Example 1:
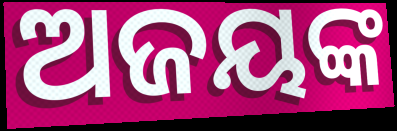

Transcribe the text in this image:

ଅଜୟଙ୍କ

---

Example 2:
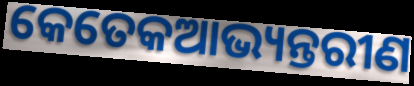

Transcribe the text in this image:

କେତେକଆଭ୍ୟନ୍ତରୀଣ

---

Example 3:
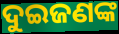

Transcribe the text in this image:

ଦୁଇଜଣଙ୍କ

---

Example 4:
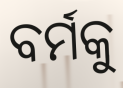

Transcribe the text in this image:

ବର୍ମକୁ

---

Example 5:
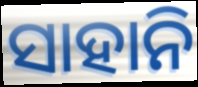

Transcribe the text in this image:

ସାହାନି